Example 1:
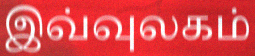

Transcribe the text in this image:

இவ்வுலகம்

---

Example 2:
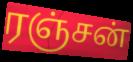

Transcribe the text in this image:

ரஞ்சன்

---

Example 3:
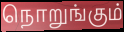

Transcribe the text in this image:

நொறுங்கும்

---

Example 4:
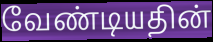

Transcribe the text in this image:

வேண்டியதின்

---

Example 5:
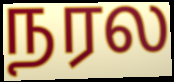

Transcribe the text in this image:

நரல